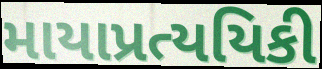
માયાપ્રત્યયિકી